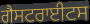
ਗੈਸਟਰਾਈਟਸ